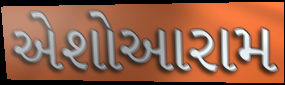
એશોઆરામ